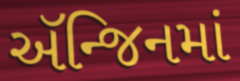
ઍન્જિનમાં